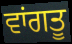
ਵਾਂਗਤੂ